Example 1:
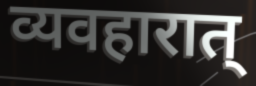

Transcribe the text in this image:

व्यवहारात्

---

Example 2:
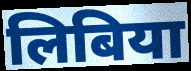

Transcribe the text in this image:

लिबिया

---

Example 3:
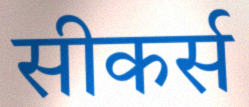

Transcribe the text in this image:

सीकर्स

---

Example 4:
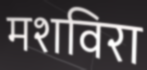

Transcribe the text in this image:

मशविरा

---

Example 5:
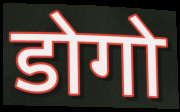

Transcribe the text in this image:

डोगो